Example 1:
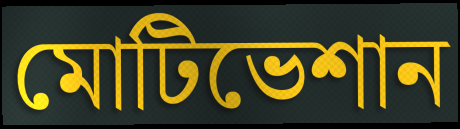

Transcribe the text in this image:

মোটিভেশান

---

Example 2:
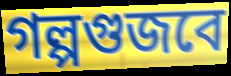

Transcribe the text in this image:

গল্পগুজবে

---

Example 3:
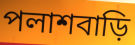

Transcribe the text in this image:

পলাশবাড়ি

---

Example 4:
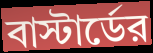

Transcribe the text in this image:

বাস্টার্ডের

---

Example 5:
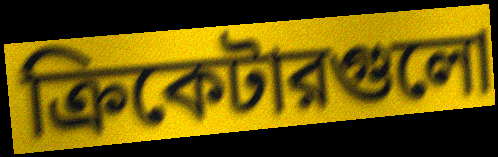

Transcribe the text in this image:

ক্রিকেটারগুলো